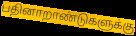
பதினாறாண்டுகளுக்கு